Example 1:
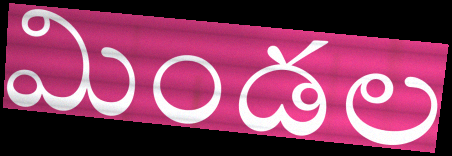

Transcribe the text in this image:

మిండల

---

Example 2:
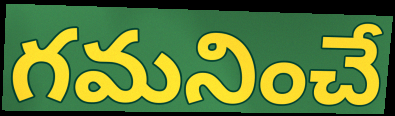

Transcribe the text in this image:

గమనించే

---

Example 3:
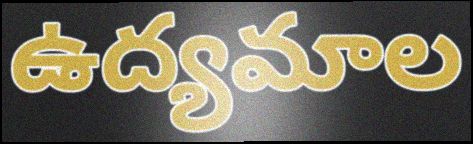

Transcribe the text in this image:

ఉద్యమాల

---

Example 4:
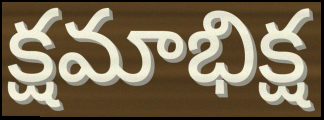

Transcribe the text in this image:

క్షమాభిక్ష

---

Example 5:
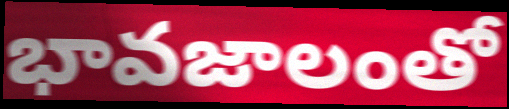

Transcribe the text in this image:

భావజాలంతో